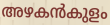
അഴകൻകുളം